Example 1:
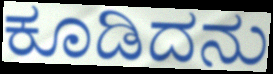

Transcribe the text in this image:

ಕೂಡಿದನು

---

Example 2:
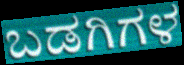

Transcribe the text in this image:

ಬಡಗಿಗಳ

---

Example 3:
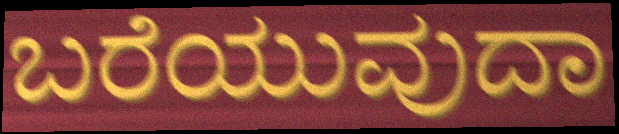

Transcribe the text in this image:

ಬರೆಯುವುದಾ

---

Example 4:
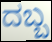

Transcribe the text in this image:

ದಬ್ಬ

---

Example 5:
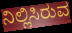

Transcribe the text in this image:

ನಿಲ್ಲಿಸಿರುವ